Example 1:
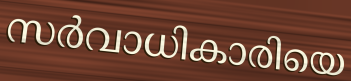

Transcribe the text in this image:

സർവാധികാരിയെ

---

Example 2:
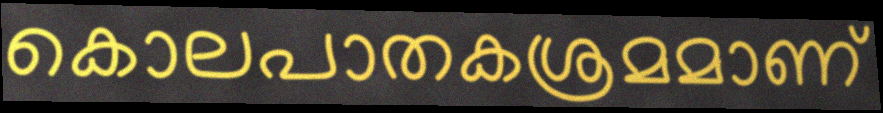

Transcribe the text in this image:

കൊലപാതകശ്രമമാണ്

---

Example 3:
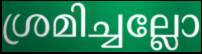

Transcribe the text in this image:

ശ്രമിച്ചല്ലോ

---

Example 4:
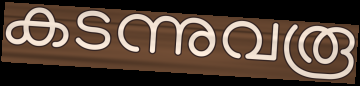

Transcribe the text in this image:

കടന്നുവരൂ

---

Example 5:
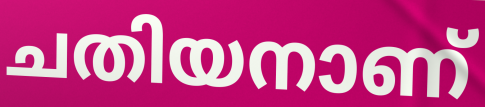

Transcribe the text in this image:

ചതിയനാണ്